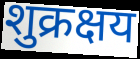
शुक्रक्षय